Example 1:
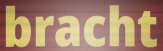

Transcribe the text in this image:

bracht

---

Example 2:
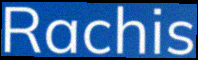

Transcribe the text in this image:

Rachis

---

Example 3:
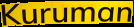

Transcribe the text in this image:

Kuruman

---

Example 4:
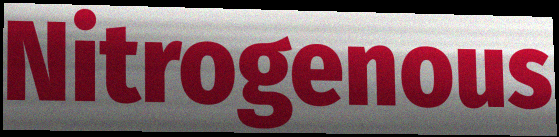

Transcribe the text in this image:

Nitrogenous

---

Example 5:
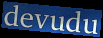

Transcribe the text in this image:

devudu